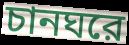
চানঘরে